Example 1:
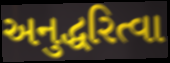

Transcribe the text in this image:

અનુદ્ધરિત્વા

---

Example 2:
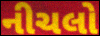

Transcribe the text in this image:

નીચલો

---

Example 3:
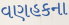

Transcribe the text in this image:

વણહકના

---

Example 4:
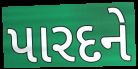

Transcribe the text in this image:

પારદને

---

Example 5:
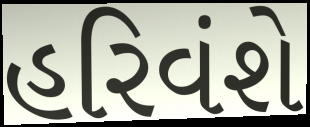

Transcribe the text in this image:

હરિવંશે